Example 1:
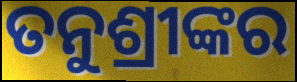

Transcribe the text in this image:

ତନୁଶ୍ରୀଙ୍କର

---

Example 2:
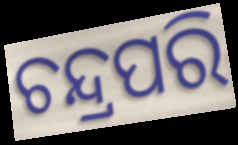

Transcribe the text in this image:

ଚନ୍ଦ୍ରପରି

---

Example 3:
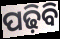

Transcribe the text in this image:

ପଢ଼ିବି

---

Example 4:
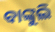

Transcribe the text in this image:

ବାଙ୍କୁଲି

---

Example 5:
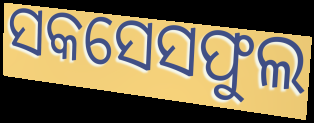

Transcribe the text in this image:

ସକସେସଫୁଲ